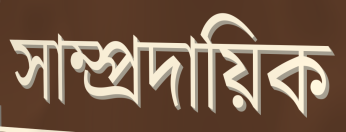
সাম্প্রদায়িক